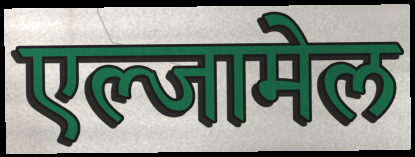
एल्जामेल